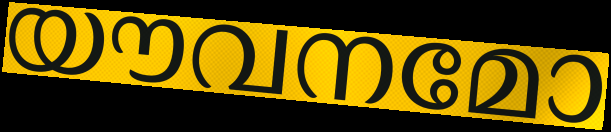
യൗവനമോ